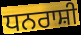
ਧਨਰਾਸ਼ੀ